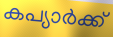
കപ്യാർക്ക്